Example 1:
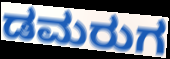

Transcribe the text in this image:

ಡಮರುಗ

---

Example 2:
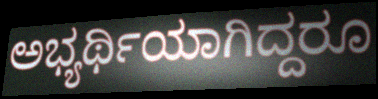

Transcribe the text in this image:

ಅಭ್ಯರ್ಥಿಯಾಗಿದ್ದರೂ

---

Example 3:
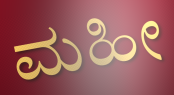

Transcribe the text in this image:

ಮಹೀ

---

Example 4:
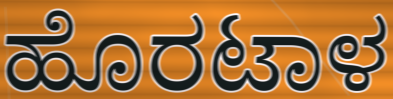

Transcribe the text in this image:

ಹೊರಟಾಳ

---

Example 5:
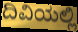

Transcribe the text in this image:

ದಿವಿಯಲ್ಲಿ